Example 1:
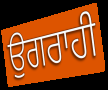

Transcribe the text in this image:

ਉਗਰਾਹੀ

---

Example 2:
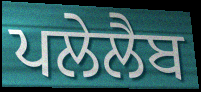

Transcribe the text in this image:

ਪਲੇਲੈਬ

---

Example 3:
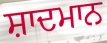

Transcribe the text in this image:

ਸ਼ਾਦਮਾਨ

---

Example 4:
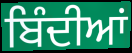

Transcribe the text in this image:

ਬਿੰਦੀਆਂ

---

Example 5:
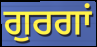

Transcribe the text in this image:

ਗੁਰਗਾਂ